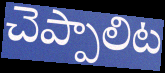
చెప్పాలిట